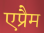
एप्रैम